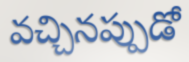
వచ్చినప్పుడో